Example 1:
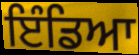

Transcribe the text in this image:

ਇੰਡਿਆ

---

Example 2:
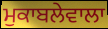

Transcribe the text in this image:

ਮੁਕਾਬਲੇਵਾਲਾ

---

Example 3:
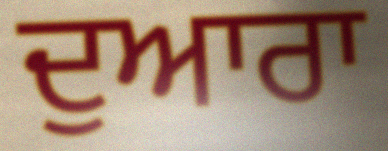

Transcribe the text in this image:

ਦੁਆਰਾ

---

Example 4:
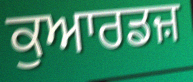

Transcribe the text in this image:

ਕੁਆਰਡਜ਼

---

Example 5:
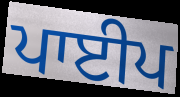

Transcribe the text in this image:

ਪਾਈਪ